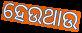
ହେଉଥାଉ